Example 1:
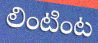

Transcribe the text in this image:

లింటింట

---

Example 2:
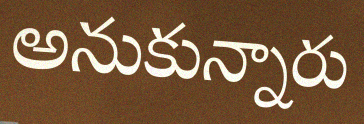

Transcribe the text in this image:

అనుకున్నారు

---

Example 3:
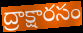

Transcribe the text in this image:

ద్రాక్షారసం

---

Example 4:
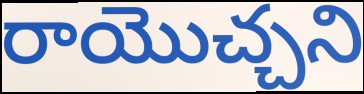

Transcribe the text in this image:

రాయొచ్చని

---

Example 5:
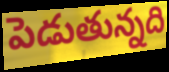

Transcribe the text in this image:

పెడుతున్నది